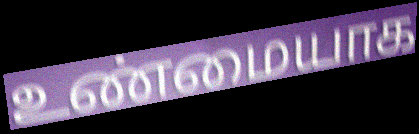
உண்மையாக